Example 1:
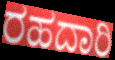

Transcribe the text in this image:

ರಹದಾರಿ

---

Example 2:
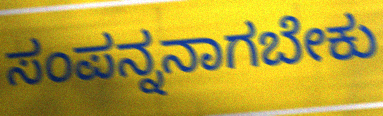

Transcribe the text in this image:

ಸಂಪನ್ನನಾಗಬೇಕು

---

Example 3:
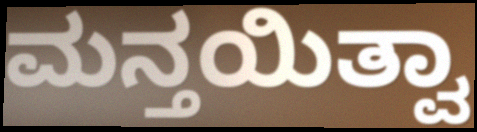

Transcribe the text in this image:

ಮನ್ತಯಿತ್ವಾ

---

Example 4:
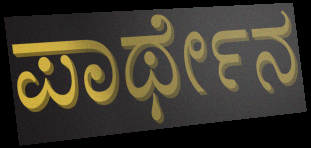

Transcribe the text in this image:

ಪಾರ್ಥೇನ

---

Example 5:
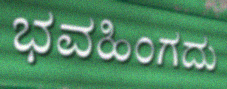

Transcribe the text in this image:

ಭವಹಿಂಗದು